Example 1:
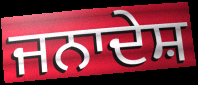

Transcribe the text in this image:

ਜਨਾਦੇਸ਼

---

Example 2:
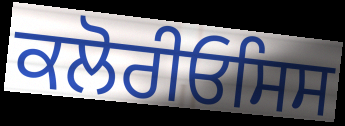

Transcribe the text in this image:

ਕਲੋਰੀਓਸਿਸ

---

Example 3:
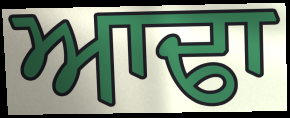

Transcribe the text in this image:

ਆਢਾ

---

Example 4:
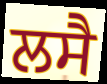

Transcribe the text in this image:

ਲਸੈ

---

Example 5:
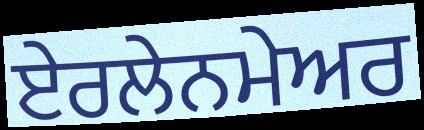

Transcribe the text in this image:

ਏਰਲੇਨਮੇਅਰ